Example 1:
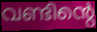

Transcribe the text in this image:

വണ്ടിന്റെ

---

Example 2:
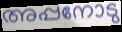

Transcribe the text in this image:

അപ്പനോടു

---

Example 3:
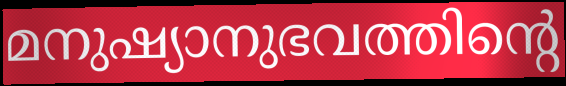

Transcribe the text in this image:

മനുഷ്യാനുഭവത്തിന്റെ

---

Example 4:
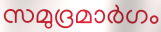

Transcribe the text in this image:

സമുദ്രമാർഗം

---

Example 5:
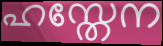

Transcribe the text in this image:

ഹസ്തേന